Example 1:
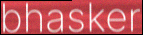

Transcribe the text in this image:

bhasker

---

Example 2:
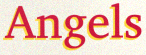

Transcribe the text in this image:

Angels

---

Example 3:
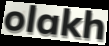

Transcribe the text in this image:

olakh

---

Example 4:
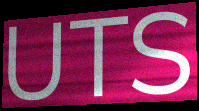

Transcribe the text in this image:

UTS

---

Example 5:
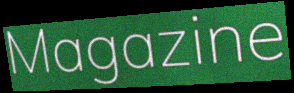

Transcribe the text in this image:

Magazine